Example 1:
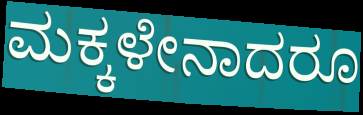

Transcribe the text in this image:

ಮಕ್ಕಳೇನಾದರೂ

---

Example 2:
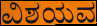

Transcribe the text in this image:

ವಿಶಯವ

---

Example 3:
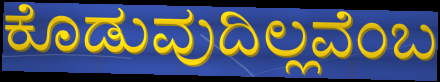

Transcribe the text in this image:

ಕೊಡುವುದಿಲ್ಲವೆಂಬ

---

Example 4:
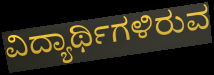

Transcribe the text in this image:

ವಿದ್ಯಾರ್ಥಿಗಳಿರುವ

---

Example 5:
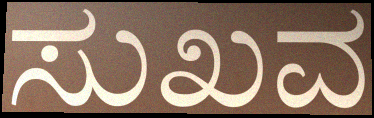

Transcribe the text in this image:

ಸುಖವ